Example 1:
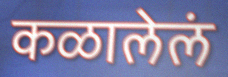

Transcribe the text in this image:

कळालेलं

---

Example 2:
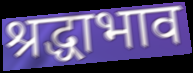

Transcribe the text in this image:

श्रद्धाभाव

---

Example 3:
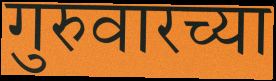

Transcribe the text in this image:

गुरुवारच्या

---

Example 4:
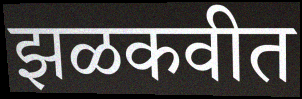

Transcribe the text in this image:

झळकवीत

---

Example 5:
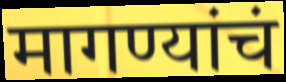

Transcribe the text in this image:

मागण्यांचं